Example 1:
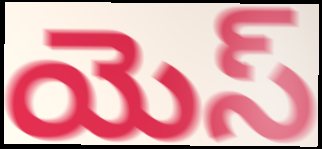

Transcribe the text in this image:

యెస్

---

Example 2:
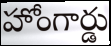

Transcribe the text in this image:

హోంగార్డు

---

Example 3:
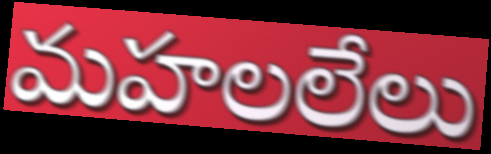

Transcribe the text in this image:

మహలలేలు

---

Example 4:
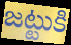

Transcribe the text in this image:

జట్టుకి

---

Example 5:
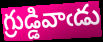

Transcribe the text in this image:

గ్రుడ్డివాఁడు